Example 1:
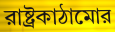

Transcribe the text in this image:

রাষ্ট্রকাঠামোর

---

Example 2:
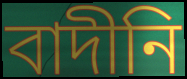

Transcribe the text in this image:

বাদীনি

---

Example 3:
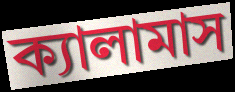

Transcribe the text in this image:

ক্যালামাস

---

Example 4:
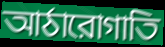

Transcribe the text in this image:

আঠারোগাতি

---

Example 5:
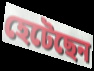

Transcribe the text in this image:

হেটেছেন